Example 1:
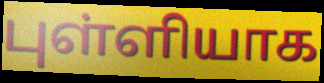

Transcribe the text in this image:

புள்ளியாக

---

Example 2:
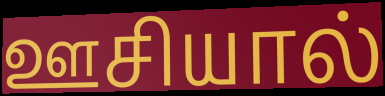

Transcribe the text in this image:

ஊசியால்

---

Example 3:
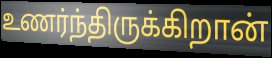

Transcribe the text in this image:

உணர்ந்திருக்கிறான்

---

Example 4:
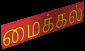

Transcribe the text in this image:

மைக்கல்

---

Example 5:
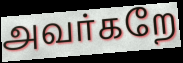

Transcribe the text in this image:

அவர்கறே